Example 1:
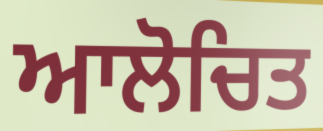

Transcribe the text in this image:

ਆਲੋਚਿਤ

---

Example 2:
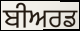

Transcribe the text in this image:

ਬੀਅਰਡ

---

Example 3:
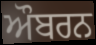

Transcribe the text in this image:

ਔਬਰਨ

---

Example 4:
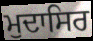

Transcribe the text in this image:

ਮੁਦਾਸਿਰ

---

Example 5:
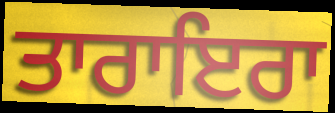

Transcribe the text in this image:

ਤਾਰਾਇਰਾ